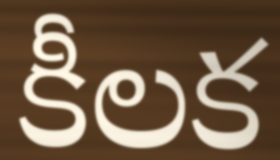
కీలక